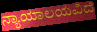
ನ್ಯಾಯಾಲಯವಿದೆ